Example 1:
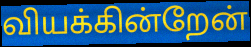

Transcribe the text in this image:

வியக்கின்றேன்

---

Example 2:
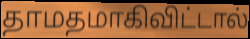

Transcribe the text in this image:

தாமதமாகிவிட்டால்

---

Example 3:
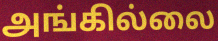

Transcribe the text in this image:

அங்கில்லை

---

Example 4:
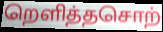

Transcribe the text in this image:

றெளித்தசொற்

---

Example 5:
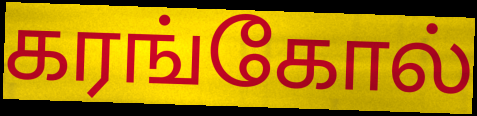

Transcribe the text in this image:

கரங்கோல்